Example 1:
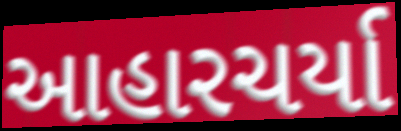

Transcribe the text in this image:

આહારચર્યા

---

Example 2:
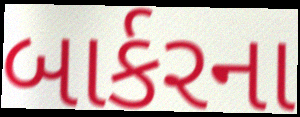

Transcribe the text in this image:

બાર્કરના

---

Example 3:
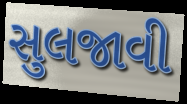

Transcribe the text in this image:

સુલજાવી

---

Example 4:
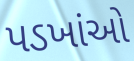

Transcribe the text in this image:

પડખાંઓ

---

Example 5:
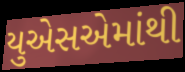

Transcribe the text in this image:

યુએસએમાંથી